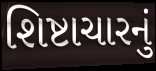
શિષ્ટાચારનું